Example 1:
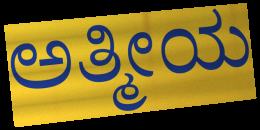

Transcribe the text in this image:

ಅತ್ಮೀಯ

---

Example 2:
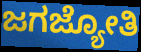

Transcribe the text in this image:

ಜಗಜ್ಯೋತಿ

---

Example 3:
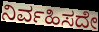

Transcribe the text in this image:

ನಿರ್ವಹಿಸದೇ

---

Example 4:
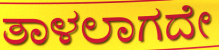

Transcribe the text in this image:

ತಾಳಲಾಗದೇ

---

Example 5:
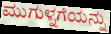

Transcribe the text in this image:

ಮುಗುಳ್ನಗೆಯನ್ನು